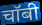
चॉबी